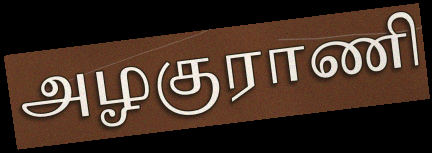
அழகுராணி